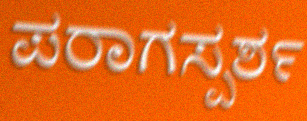
ಪರಾಗಸ್ಪರ್ಶ